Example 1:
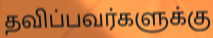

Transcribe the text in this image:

தவிப்பவர்களுக்கு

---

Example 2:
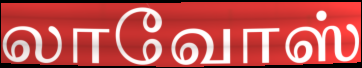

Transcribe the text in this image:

லாவோஸ்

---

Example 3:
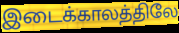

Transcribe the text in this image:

இடைக்காலத்திலே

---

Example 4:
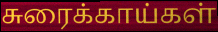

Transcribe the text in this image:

சுரைக்காய்கள்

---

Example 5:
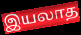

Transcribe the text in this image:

இயலாத